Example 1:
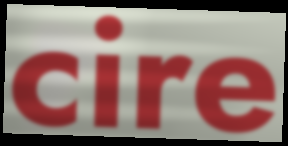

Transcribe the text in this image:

cire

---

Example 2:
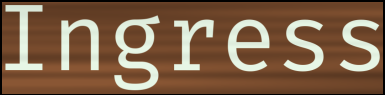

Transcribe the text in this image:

Ingress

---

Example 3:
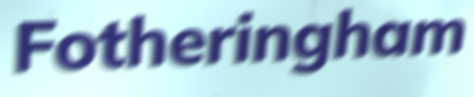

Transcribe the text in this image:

Fotheringham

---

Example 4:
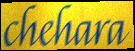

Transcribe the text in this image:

chehara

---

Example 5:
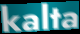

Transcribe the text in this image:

kalta